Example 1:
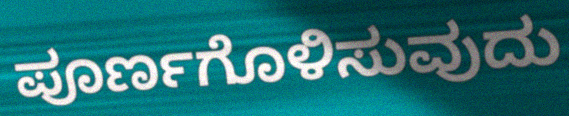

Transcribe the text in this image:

ಪೂರ್ಣಗೊಳಿಸುವುದು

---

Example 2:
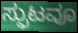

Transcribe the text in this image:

ಸ್ಫುಟವೂ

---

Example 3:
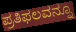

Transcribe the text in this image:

ಪ್ರತಿಫಲವನ್ನೂ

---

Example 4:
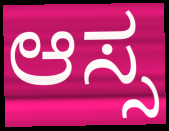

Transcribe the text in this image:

ಆಸ್ಸ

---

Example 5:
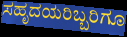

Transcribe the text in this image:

ಸಹೃದಯರಿಬ್ಬರಿಗೂ